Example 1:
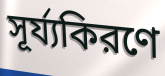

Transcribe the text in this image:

সূর্য্যকিরণে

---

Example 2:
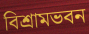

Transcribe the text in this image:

বিশ্রামভবন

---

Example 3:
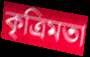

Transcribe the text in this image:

কৃত্রিমতা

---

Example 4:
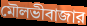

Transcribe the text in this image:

মৌলভীবাজার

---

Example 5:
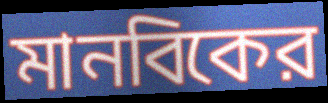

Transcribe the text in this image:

মানবিকের